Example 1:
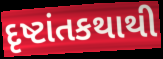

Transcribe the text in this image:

દૃષ્ટાંતકથાથી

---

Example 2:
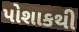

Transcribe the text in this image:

પોશાકથી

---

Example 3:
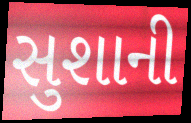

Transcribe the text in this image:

સુશાની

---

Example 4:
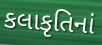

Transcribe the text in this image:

કલાકૃતિનાં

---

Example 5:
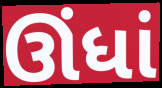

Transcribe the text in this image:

ઊંધાં